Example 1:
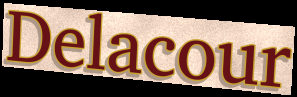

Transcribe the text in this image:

Delacour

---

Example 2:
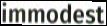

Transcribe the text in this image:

immodest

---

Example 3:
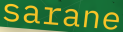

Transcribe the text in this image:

sarane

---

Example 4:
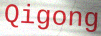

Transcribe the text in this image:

Qigong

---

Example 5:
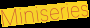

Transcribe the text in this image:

Miniseries